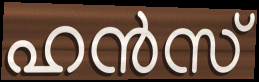
ഹൻസ്